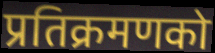
प्रतिक्रमणको